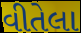
વીતેલા